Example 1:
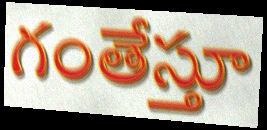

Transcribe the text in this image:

గంతేస్తూ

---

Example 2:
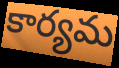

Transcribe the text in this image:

కార్యమ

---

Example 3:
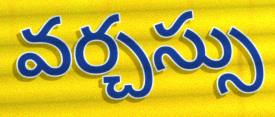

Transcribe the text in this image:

వర్చస్సు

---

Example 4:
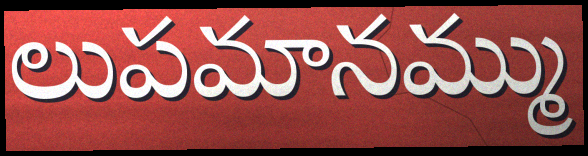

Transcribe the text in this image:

లుపమానమ్ము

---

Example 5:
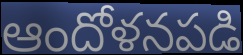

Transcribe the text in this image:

ఆందోళనపడి